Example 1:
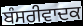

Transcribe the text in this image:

ਬੰਸਰੀਵਾਦਕ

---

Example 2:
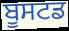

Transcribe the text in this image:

ਬੂਸਟਡ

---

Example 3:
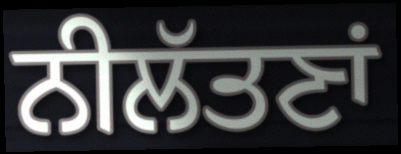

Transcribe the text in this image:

ਨੀਲੱਤਣਾਂ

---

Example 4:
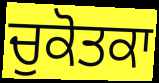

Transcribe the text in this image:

ਚੁਕੋਤਕਾ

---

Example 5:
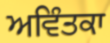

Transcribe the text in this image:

ਅਵਿੰਤਕਾ